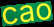
cao